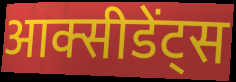
आक्सीडेंट्स